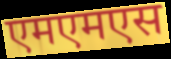
एमएमएस